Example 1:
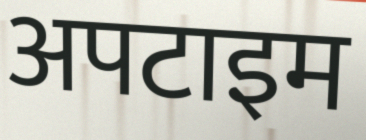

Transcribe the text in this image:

अपटाइम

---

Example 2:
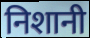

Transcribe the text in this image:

निशानी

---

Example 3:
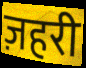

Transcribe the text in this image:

ज़हरी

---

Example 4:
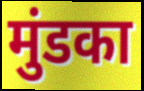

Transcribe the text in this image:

मुंडका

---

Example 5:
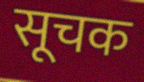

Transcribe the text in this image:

सूचक